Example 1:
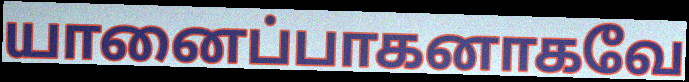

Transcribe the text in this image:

யானைப்பாகனாகவே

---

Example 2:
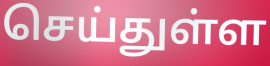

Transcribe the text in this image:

செய்துள்ள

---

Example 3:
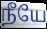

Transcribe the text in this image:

நீயே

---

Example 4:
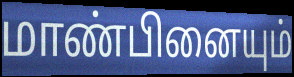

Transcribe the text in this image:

மாண்பினையும்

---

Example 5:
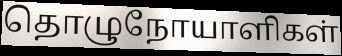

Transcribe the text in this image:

தொழுநோயாளிகள்